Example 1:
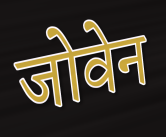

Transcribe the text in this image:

जोवेन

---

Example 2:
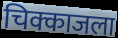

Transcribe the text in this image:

चिक्काजला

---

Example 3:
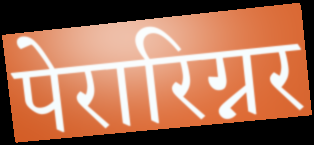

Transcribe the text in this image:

पेरारिग्नर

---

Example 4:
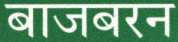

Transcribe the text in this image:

बाजबरन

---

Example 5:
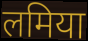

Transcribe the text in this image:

लमिया